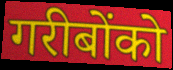
गरीबोंको